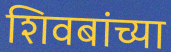
शिवबांच्या